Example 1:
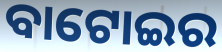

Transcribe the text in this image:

ବାଟୋଇର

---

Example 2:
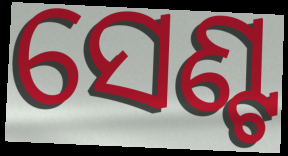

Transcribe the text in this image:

ସେଣ୍ଟ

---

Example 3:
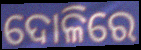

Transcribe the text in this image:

ଦୋଳିରେ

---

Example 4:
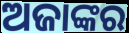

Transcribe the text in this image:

ଅଜାଙ୍କର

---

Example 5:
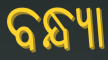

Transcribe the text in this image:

ବନ୍ଧ୍ୟା